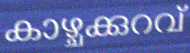
കാഴ്ചക്കുറവ്